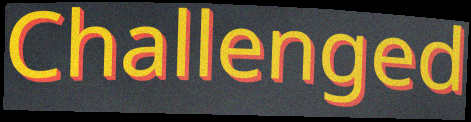
Challenged